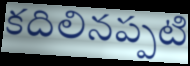
కదిలినప్పటి